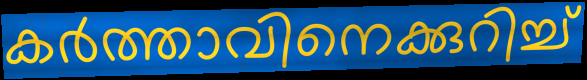
കർത്താവിനെക്കുറിച്ച്